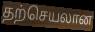
தற்செயலான